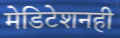
मेडिटेशनही